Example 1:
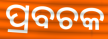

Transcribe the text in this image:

ପ୍ରବଚକ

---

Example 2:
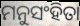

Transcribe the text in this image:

ମନୁସଂହିତା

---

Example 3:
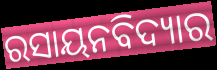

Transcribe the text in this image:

ରସାୟନବିଦ୍ୟାର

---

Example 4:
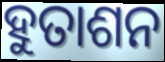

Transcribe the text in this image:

ହୁତାଶନ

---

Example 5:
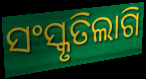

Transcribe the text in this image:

ସଂସ୍କୃତିଲାଗି